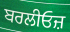
ਬਰਲੀਓਜ਼